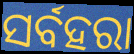
ସର୍ବହରା